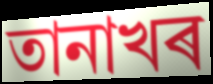
তানাখৰ